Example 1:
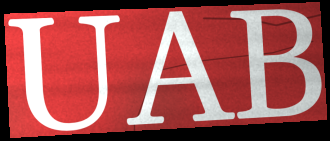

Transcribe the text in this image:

UAB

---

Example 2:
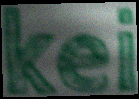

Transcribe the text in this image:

kei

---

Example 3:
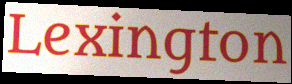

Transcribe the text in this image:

Lexington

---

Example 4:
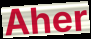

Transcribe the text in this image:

Aher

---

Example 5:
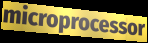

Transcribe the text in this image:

microprocessor